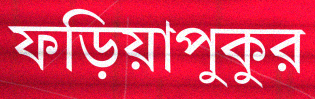
ফড়িয়াপুকুর